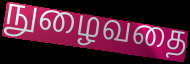
நுழைவதை